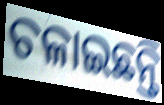
ଚଳାଇଛନ୍ତି